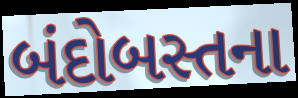
બંદોબસ્તના